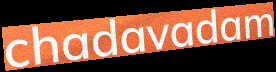
chadavadam